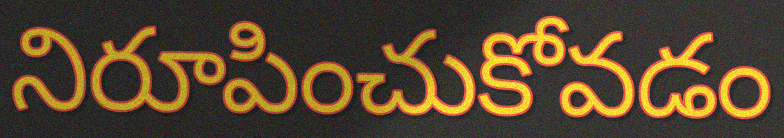
నిరూపించుకోవడం